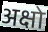
अक्षो